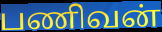
பணிவன்